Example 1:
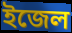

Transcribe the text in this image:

ইজেল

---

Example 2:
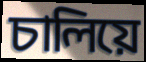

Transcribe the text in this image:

চালিয়ে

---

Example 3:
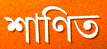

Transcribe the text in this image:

শাণিত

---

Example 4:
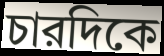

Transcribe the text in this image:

চারদিকে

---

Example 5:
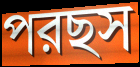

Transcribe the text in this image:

পরছস